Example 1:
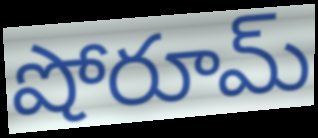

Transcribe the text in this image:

షోరూమ్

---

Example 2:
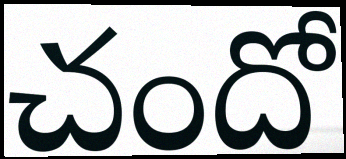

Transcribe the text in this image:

చందో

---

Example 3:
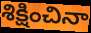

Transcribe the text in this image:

శిక్షించినా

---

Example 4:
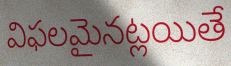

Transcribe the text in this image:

విఫలమైనట్లయితే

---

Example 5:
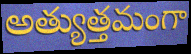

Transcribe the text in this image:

అత్యుత్తమంగా